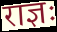
राज्ञः